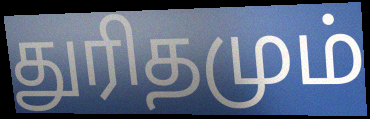
துரிதமும்